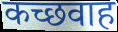
कच्छवाह